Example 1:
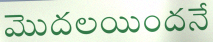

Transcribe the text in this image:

మొదలయిందనే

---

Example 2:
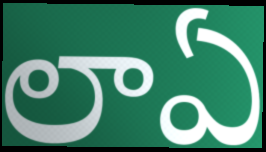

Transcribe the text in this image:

లాఏ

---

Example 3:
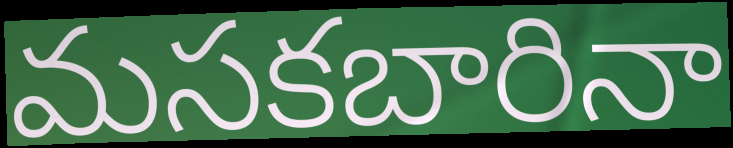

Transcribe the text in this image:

మసకబారినా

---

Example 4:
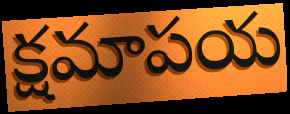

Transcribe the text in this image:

క్షమాపయ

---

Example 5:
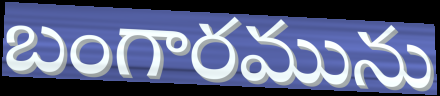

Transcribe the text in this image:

బంగారమును